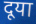
दूया